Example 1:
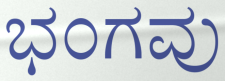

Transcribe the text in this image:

ಭಂಗವು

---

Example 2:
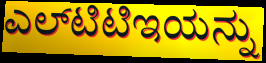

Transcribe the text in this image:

ಎಲ್‌ಟಿಟಿಇಯನ್ನು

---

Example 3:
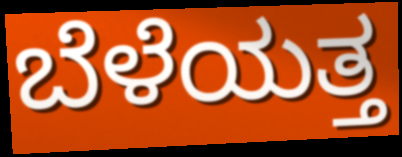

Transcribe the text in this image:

ಬೆಳೆಯತ್ತ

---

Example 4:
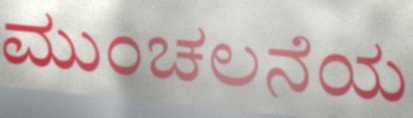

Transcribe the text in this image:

ಮುಂಚಲನೆಯ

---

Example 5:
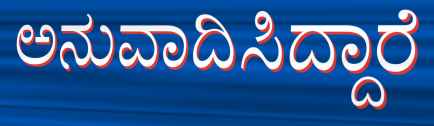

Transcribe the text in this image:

ಅನುವಾದಿಸಿದ್ದಾರೆ